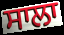
ਸਾਲਾ